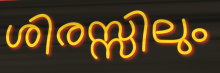
ശിരസ്സിലും